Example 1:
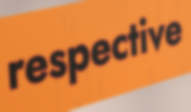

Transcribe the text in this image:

respective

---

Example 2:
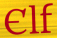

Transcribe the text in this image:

Elf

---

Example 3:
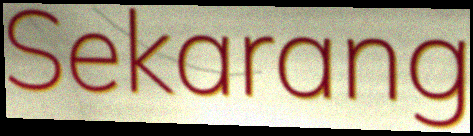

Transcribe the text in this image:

Sekarang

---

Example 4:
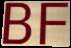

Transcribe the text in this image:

BF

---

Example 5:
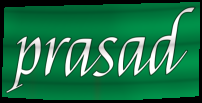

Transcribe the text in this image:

prasad